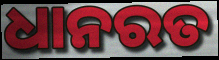
ଧାନରତ